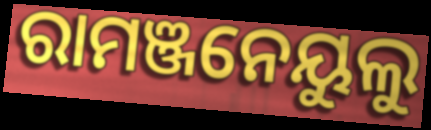
ରାମଞ୍ଜନେୟୁଲୁ